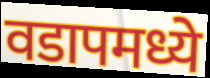
वडापमध्ये